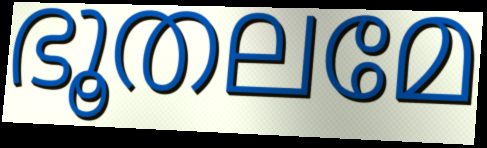
ഭൂതലമേ